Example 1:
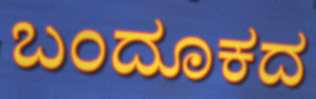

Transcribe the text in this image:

ಬಂದೂಕದ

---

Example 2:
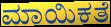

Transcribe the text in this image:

ಮಾಯಿಕತೆ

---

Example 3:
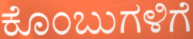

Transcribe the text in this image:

ಕೊಂಬುಗಳಿಗೆ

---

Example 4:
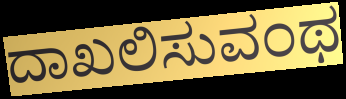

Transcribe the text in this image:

ದಾಖಲಿಸುವಂಥ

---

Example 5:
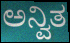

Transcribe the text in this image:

ಅನ್ವಿತ